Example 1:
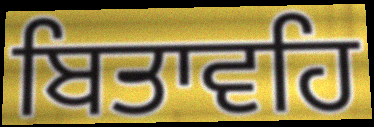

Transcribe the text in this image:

ਬਿਤਾਵਹਿ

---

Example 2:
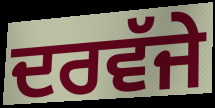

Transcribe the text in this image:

ਦਰਵੱਜੇ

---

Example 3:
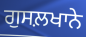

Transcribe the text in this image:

ਗੁਸਲ਼ਖਾਨੇ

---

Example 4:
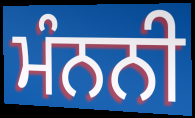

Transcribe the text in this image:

ਮੰਨਨੀ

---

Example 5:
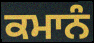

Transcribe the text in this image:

ਕਮਾਨੰ